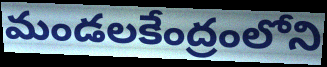
మండలకేంద్రంలోని